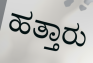
ಹತ್ತಾರು